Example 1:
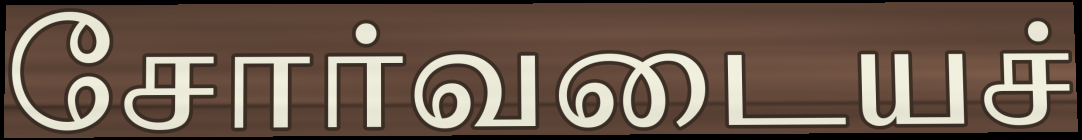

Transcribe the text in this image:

சோர்வடையச்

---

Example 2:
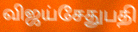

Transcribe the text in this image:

விஜய்சேதுபதி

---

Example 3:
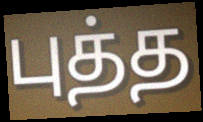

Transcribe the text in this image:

புத்த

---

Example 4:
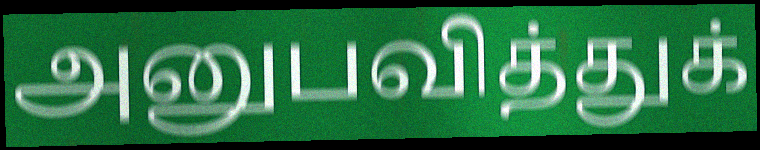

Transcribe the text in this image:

அனுபவித்துக்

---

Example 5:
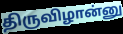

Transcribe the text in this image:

திருவிழான்னு